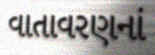
વાતાવરણનાં